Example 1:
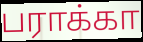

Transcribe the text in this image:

பராக்கா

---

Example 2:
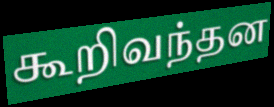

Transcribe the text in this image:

கூறிவந்தன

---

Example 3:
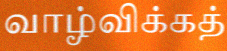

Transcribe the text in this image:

வாழ்விக்கத்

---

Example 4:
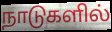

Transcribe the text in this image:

நாடுகளில்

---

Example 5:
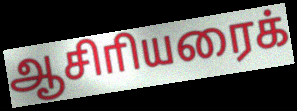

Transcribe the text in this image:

ஆசிரியரைக்